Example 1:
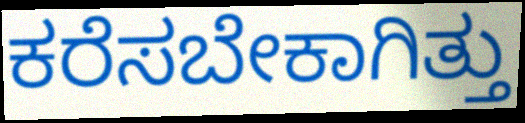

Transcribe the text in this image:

ಕರೆಸಬೇಕಾಗಿತ್ತು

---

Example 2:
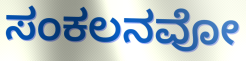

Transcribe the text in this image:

ಸಂಕಲನವೋ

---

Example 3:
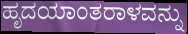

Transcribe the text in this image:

ಹೃದಯಾಂತರಾಳವನ್ನು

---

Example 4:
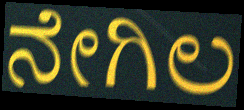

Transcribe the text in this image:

ನೇಗಿಲ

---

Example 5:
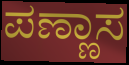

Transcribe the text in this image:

ಪಣ್ಣಾಸ